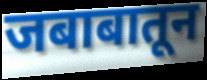
जबाबातून